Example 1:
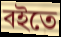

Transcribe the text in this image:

বইতে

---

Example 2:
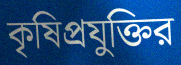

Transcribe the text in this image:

কৃষিপ্রযুক্তির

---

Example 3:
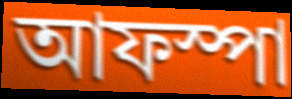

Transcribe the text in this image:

আফস্পা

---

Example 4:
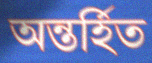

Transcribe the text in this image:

অন্তর্হিত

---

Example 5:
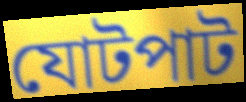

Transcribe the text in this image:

যোটপাট